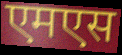
एमएस